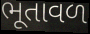
ભૂતાવળ